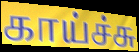
காய்ச்சு